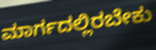
ಮಾರ್ಗದಲ್ಲಿರಬೇಕು